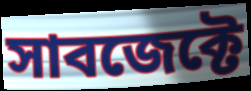
সাবজেক্টে